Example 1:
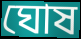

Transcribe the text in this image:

ঘোষ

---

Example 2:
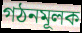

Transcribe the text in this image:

গঠনমূলক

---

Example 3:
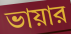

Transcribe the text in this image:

ভায়ার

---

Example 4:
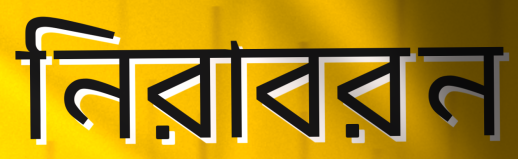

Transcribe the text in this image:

নিরাবরন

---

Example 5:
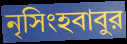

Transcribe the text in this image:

নৃসিংহবাবুর